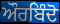
ਔਰਬਿੰਦੋ